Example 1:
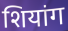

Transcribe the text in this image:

शियांग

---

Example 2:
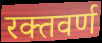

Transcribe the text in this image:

रक्तवर्ण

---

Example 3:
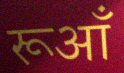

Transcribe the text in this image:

रूआँ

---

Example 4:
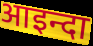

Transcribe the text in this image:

आइन्दा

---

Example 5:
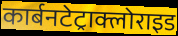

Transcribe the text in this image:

कार्बनटेट्राक्लोराइड